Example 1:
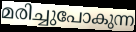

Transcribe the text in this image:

മരിച്ചുപോകുന്ന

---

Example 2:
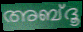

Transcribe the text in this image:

അബ്ദൂ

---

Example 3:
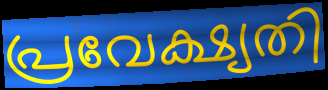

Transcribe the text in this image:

പ്രവേക്ഷ്യതി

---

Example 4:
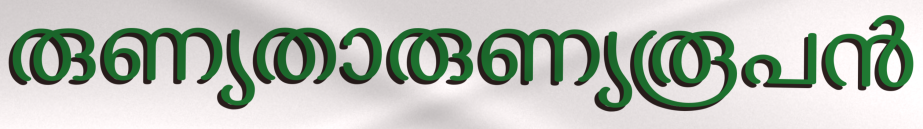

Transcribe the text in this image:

രുണ്യതാരുണ്യരൂപൻ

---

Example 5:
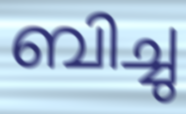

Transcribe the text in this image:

ബിച്ചു